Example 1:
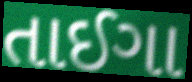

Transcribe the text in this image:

તાઈગા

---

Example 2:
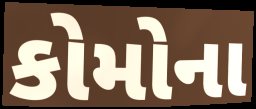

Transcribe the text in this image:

કોમોના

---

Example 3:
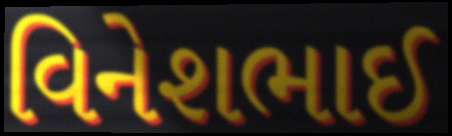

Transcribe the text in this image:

વિનેશભાઈ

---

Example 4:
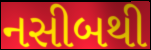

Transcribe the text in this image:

નસીબથી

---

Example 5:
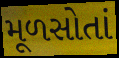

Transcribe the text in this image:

મૂળસોતાં